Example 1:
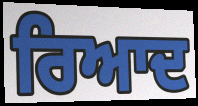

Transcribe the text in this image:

ਰਿਆਦ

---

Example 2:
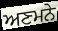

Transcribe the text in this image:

ਅਣਮਨੇ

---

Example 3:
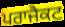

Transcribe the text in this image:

ਪਰਾਜੈਕਟ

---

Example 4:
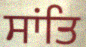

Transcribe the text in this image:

ਸਾਂਤਿ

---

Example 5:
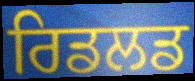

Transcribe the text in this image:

ਰਿਡਲਡ